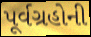
પૂર્વગ્રહોની